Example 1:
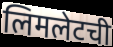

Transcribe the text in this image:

लिमलेटची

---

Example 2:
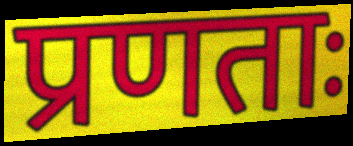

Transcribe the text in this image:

प्रणताः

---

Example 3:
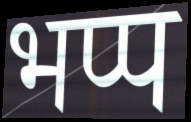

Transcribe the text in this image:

भप्प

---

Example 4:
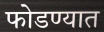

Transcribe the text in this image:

फोडण्यात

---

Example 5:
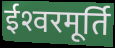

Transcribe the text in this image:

ईश्वरमूर्ति